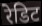
रेडिट